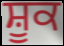
ਸ਼ੂਕ